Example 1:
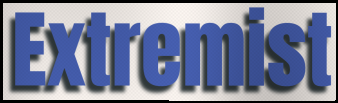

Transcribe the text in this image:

Extremist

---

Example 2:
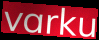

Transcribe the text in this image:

varku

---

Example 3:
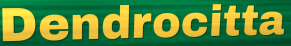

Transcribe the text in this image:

Dendrocitta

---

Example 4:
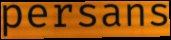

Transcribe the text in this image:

persans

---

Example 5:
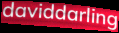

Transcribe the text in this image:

daviddarling